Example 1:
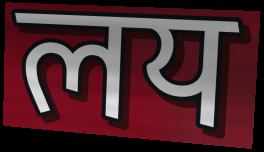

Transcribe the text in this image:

लय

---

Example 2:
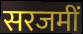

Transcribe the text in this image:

सरजमीं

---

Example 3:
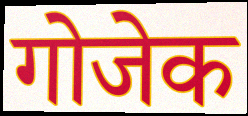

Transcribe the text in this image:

गोजेक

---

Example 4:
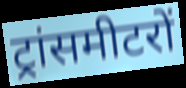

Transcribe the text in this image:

ट्रांसमीटरों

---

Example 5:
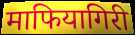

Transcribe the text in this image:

माफियागिरी